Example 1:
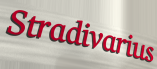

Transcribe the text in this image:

Stradivarius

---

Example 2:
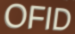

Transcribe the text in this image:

OFID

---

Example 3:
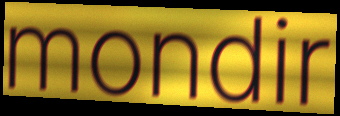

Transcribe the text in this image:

mondir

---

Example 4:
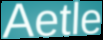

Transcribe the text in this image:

Aetle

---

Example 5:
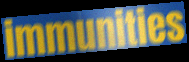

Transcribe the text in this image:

immunities